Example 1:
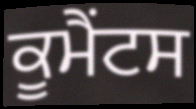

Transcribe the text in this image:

ਕੂਮੈਂਟਸ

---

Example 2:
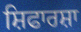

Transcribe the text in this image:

ਸ਼ਿਫਾਰਸ਼ਾ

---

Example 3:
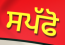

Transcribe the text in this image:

ਸਪੱਫੋ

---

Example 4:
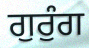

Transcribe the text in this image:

ਗੁਰੁੰਗ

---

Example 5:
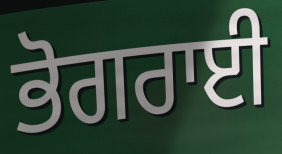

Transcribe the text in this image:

ਭੋਗਰਾਈ